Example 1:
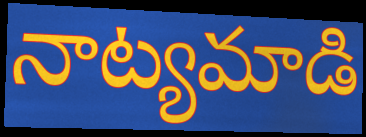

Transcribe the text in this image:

నాట్యమాడి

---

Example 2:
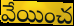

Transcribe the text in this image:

వేయించ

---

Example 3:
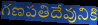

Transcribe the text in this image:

గణపతిదేవునికి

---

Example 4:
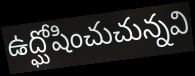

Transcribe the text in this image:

ఉద్ఘోషించుచున్నవి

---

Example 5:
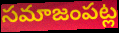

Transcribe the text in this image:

సమాజంపట్ల